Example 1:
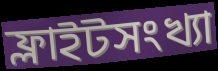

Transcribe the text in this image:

ফ্লাইটসংখ্যা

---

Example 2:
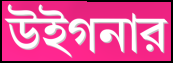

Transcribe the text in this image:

উইগনার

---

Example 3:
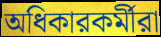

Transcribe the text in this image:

অধিকারকর্মীরা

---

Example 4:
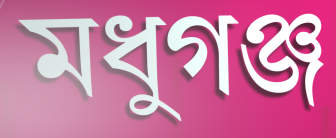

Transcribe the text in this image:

মধুগঞ্জ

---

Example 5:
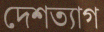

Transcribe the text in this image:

দেশত্যাগ